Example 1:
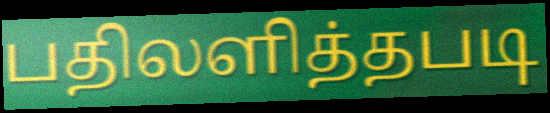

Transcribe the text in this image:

பதிலளித்தபடி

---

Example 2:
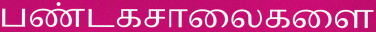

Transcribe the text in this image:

பண்டகசாலைகளை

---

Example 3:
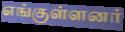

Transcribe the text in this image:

எங்குள்ளனர்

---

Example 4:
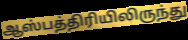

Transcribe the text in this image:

ஆஸ்பத்திரியிலிருந்து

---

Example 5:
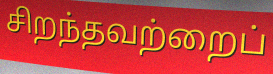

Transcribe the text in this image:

சிறந்தவற்றைப்